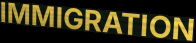
IMMIGRATION